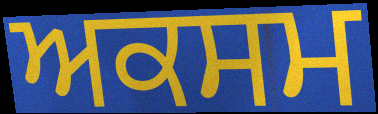
ਅਕਸਮ